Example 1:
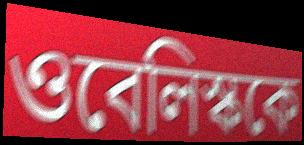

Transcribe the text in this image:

ওবেলিস্ককে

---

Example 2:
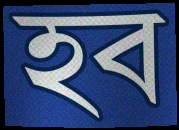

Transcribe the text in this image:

হব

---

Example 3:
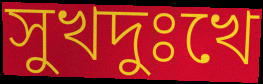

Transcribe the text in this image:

সুখদুঃখে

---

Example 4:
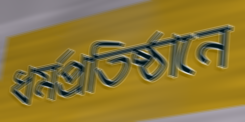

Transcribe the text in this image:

ধর্মপ্রতিষ্ঠানে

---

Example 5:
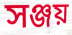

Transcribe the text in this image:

সঞ্জয়